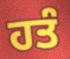
ਹਤੰ